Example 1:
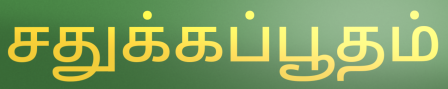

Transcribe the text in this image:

சதுக்கப்பூதம்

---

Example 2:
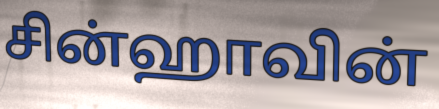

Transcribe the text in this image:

சின்ஹாவின்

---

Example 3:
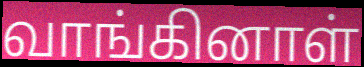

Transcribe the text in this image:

வாங்கினாள்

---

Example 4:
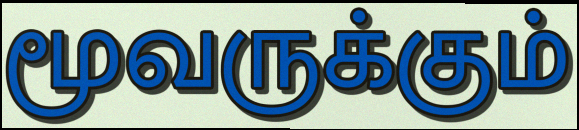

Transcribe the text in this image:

மூவருக்கும்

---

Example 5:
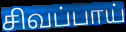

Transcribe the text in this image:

சிவப்பாய்